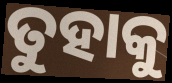
ତୁହାକୁ